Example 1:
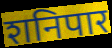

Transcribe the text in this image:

शनिपार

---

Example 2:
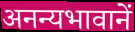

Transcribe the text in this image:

अनन्यभावानें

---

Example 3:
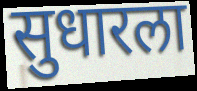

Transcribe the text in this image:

सुधारला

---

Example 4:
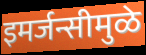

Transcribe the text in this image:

इमर्जन्सीमुळे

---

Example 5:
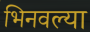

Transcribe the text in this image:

भिनवल्या